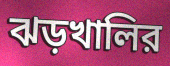
ঝড়খালির